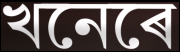
খনেৰে